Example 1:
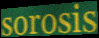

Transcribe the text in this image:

sorosis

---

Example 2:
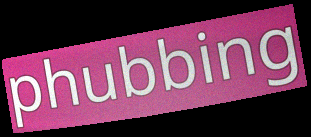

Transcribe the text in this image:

phubbing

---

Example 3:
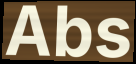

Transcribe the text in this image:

Abs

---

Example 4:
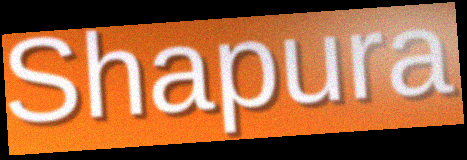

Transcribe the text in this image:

Shapura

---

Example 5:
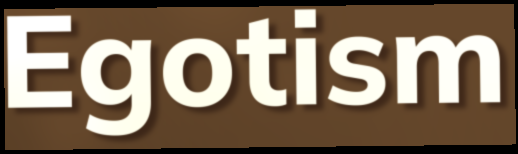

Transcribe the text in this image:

Egotism